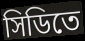
সিডিতে